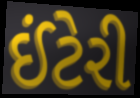
ઈંટેરી